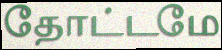
தோட்டமே